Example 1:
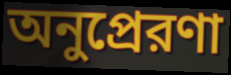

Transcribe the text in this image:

অনুপ্রেরণা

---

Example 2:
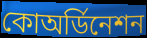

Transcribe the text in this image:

কোঅর্ডিনেশন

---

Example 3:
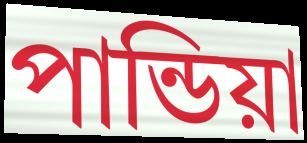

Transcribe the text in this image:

পান্ডিয়া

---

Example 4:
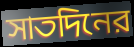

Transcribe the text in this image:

সাতদিনের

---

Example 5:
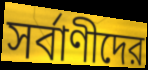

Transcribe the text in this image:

সর্বাণীদের